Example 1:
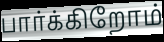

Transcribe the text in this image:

பார்க்கிறோம்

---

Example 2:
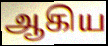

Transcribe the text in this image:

ஆகிய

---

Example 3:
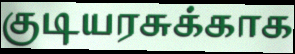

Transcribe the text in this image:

குடியரசுக்காக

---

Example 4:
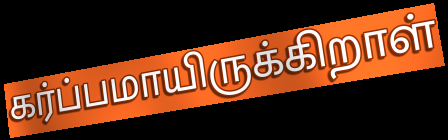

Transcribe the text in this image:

கர்ப்பமாயிருக்கிறாள்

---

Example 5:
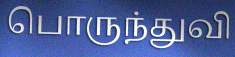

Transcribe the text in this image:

பொருந்துவி